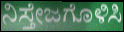
ನಿಸ್ತೇಜಗೊಳಿಸಿ